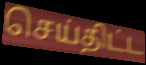
செய்திட்ட